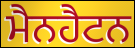
ਮੈਨਹੈਟਨ